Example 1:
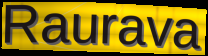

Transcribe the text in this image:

Raurava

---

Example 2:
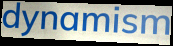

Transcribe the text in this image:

dynamism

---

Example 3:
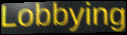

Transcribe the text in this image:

Lobbying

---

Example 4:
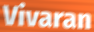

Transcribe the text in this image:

Vivaran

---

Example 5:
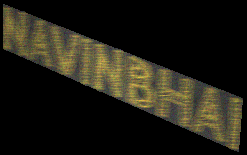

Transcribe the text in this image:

NAVINBHAI